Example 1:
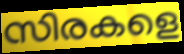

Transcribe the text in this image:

സിരകളെ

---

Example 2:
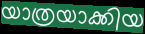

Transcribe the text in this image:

യാത്രയാക്കിയ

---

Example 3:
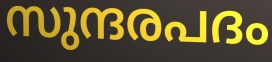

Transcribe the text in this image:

സുന്ദരപദം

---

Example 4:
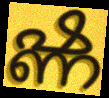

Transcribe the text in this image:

ഷ്ണ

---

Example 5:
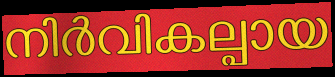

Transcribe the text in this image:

നിർവികല്പായ